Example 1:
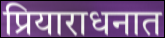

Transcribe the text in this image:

प्रियाराधनात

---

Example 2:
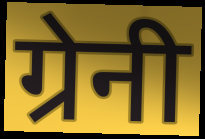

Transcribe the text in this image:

ग्रेनी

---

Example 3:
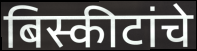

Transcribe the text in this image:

बिस्कीटांचे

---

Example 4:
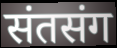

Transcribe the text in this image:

संतसंग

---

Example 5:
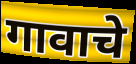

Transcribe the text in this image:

गावाचे